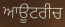
ਆਊਟਰੀਚ